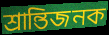
শ্রান্তিজনক